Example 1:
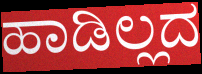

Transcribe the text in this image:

ಹಾಡಿಲ್ಲದ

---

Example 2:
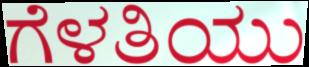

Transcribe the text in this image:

ಗೆಳತಿಯು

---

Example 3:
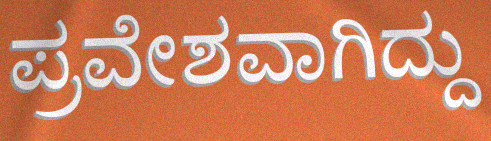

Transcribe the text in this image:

ಪ್ರವೇಶವಾಗಿದ್ದು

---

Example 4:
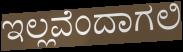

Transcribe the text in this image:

ಇಲ್ಲವೆಂದಾಗಲಿ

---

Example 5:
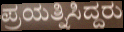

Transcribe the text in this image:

ಪ್ರಯತ್ನಿಸಿದ್ದರು